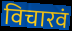
विचारवं